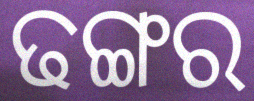
ଢଙ୍ଗର